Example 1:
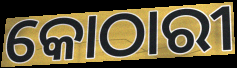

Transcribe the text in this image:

କୋଠାରୀ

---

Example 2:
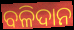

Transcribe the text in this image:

ବଳିଦାନ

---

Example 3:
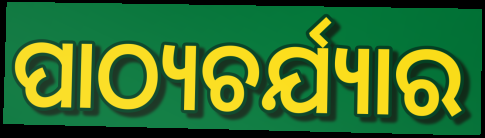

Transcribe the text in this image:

ପାଠ୍ୟଚର୍ଯ୍ୟାର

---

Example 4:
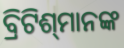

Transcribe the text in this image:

ବ୍ରିଟିଶ୍‌ମାନଙ୍କ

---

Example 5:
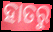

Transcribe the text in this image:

ହାତରୁ